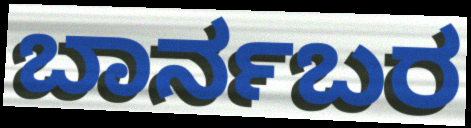
ಬಾರ್ನಬರ